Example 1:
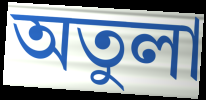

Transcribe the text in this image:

অতুলা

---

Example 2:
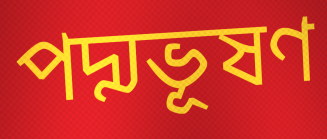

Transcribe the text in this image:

পদ্মভূষণ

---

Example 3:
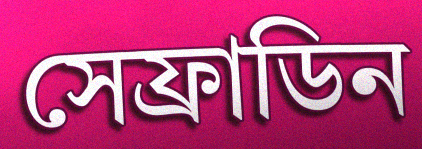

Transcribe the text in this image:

সেফ্রাডিন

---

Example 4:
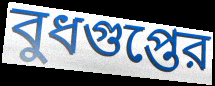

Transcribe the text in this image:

বুধগুপ্তের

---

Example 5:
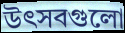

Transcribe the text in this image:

উৎসবগুলো